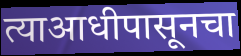
त्याआधीपासूनचा